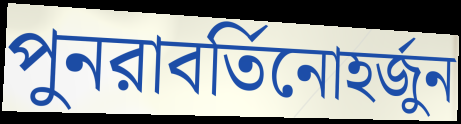
পুনরাবর্তিনোহর্জুন